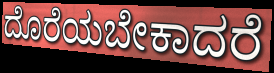
ದೊರೆಯಬೇಕಾದರೆ